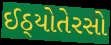
ઈઠ્યોતેરસો